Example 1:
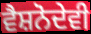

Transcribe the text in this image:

ਵੈਸ਼ਨੋਦੇਵੀ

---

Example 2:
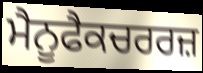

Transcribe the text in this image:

ਮੈਨੂਫੈਕਚਰਰਜ਼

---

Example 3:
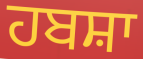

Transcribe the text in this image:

ਹਬਸ਼ਾ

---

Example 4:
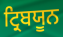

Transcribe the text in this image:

ਟ੍ਰਿਬਯੂਨ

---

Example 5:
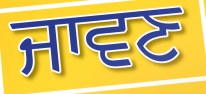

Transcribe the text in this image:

ਜਾਵਣ